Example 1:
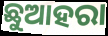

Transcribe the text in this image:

ଛୁଆହରା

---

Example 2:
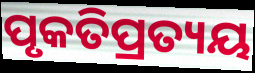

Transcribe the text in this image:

ପୃକତିପ୍ରତ୍ୟୟ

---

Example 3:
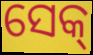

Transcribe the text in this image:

ସେକ୍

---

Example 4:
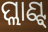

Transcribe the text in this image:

ପ୍ଲାଣ୍ଟ୍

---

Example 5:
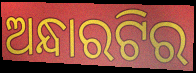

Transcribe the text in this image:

ଅନ୍ଧାରଟିର